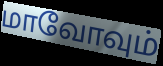
மாவோவும்